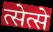
त्सेत्से